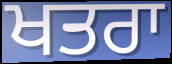
ਖਤਰਾ